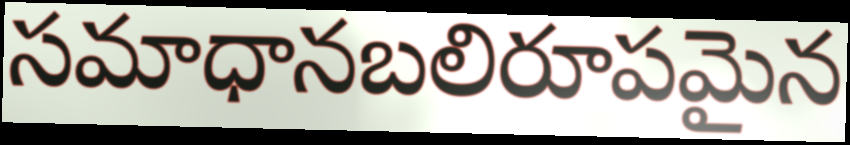
సమాధానబలిరూపమైన